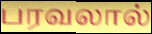
பரவலால்